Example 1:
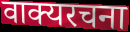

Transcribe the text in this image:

वाक्यरचना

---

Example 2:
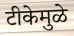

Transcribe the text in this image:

टीकेमुळे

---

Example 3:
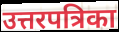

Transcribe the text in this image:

उत्तरपत्रिका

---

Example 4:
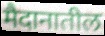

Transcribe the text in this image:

मैदानातील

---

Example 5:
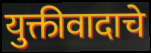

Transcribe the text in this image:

युक्तीवादाचे